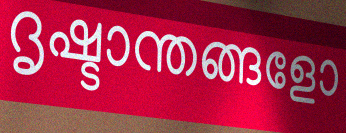
ദൃഷ്ടാന്തങ്ങളോ